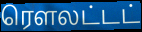
ரௌலட்டட்